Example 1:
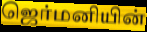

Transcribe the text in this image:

ஜெர்மனியின்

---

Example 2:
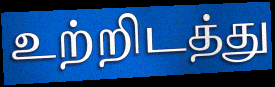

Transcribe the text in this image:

உற்றிடத்து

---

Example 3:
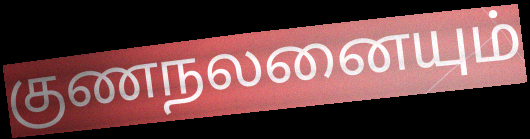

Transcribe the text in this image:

குணநலனையும்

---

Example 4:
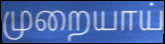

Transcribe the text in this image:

முறையாய்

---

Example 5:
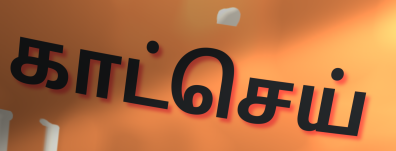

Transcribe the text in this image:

காட்செய்